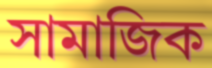
সামাজিক